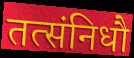
तत्संनिधौ